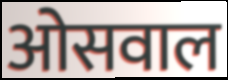
ओसवाल